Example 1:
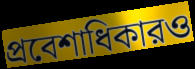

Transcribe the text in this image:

প্রবেশাধিকারও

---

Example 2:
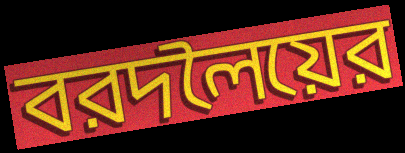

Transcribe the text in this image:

বরদলৈয়ের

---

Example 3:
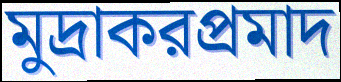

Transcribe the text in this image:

মুদ্রাকরপ্রমাদ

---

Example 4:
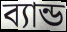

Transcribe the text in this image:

ব্যান্ড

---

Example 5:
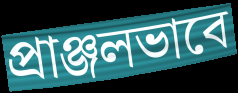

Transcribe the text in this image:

প্রাঞ্জলভাবে